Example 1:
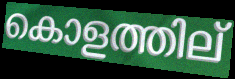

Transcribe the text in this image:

കൊളത്തില്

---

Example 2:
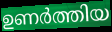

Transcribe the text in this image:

ഉണർത്തിയ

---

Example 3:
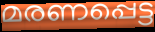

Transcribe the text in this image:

മരണപ്പെട്ട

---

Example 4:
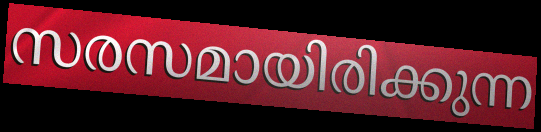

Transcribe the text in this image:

സരസമായിരിക്കുന്ന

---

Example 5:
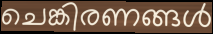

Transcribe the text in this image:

ചെങ്കിരണങ്ങൾ